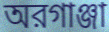
অরগাঞ্জা